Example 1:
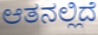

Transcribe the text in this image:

ಆತನಲ್ಲಿದೆ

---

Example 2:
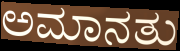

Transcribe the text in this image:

ಅಮಾನತು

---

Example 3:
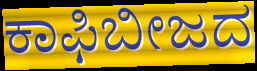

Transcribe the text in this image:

ಕಾಫಿಬೀಜದ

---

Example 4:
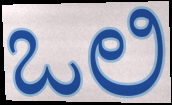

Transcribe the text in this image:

ಒಲಿ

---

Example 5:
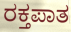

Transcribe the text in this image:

ರಕ್ತಪಾತ